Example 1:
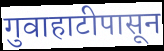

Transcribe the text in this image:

गुवाहाटीपासून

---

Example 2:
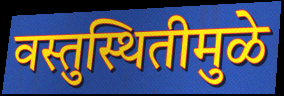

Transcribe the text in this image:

वस्तुस्थितीमुळे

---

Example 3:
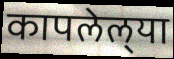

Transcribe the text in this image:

कापलेल्या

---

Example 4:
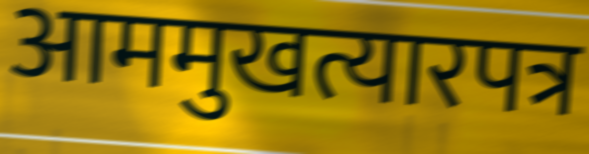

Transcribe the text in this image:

आममुखत्यारपत्र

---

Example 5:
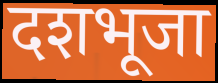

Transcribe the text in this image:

दशभूजा